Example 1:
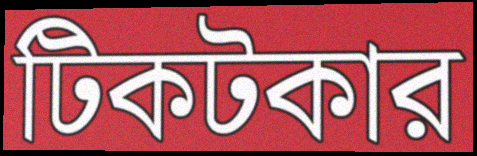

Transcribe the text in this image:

টিকটকার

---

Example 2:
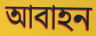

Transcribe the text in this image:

আবাহন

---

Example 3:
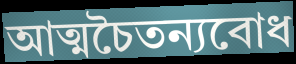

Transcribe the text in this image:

আত্মচৈতন্যবোধ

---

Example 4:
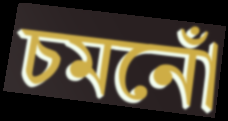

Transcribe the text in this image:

চমনোঁ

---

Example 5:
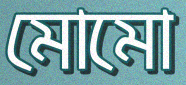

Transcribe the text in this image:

মোমো